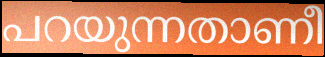
പറയുന്നതാണീ